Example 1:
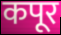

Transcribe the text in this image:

कपूर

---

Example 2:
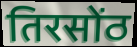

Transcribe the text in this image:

तिरसोंठ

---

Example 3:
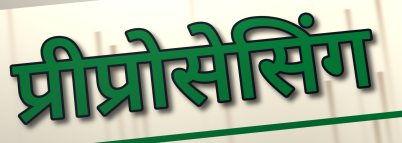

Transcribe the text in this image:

प्रीप्रोसेसिंग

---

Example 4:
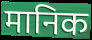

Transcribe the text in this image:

मानिक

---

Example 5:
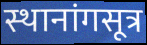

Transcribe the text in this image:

स्थानांगसूत्र